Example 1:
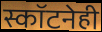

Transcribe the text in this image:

स्कॉटनेही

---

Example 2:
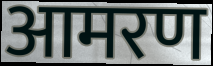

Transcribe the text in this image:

आमरण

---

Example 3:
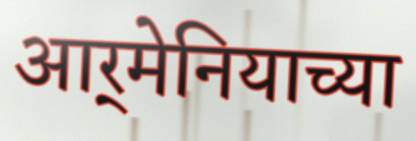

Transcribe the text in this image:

आर्मेनियाच्या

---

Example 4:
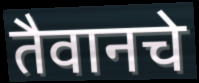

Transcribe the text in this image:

तैवानचे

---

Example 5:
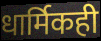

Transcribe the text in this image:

धार्मिकही